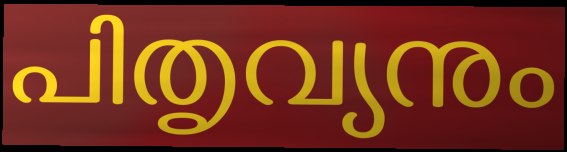
പിതൃവ്യനും